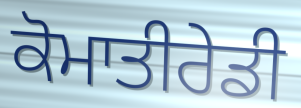
ਕੋਮਾਤੀਰੇਡੀ